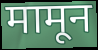
मामून